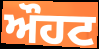
ਔਹਟ